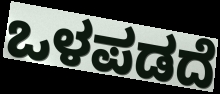
ಒಳಪಡದೆ